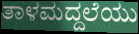
ತಾಳಮದ್ದಲೆಯು